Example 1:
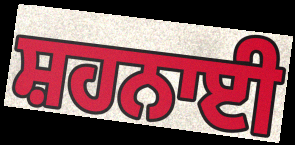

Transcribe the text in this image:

ਸ਼ਹਨਾਈ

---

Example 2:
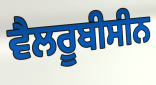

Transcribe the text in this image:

ਵੈਲਰੂਬੀਸੀਨ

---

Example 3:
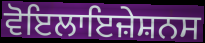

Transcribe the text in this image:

ਵੋਇਲਾਇਜ਼ੇਸ਼ਨਸ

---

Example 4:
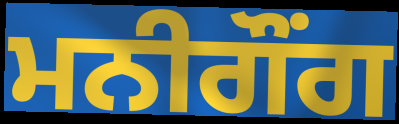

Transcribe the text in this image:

ਮਨੀਗੌਂਗ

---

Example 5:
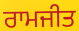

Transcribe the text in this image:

ਰਾਮਜੀਤ